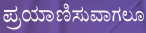
ಪ್ರಯಾಣಿಸುವಾಗಲೂ